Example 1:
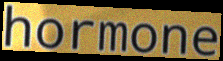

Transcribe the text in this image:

hormone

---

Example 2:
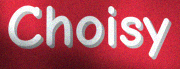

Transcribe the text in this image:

Choisy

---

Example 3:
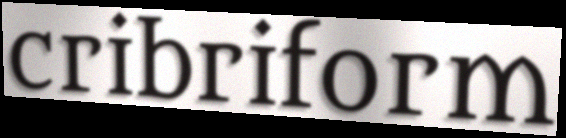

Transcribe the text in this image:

cribriform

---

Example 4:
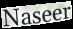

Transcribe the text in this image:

Naseer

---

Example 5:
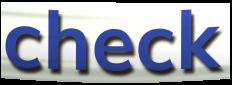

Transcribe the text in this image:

check